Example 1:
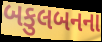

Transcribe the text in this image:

બકુલબનના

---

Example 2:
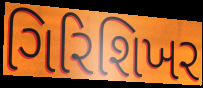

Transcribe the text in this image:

ગિરિશિખર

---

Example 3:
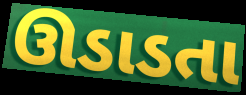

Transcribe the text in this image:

ઊડાડતા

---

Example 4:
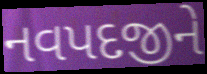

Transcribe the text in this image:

નવપદજીને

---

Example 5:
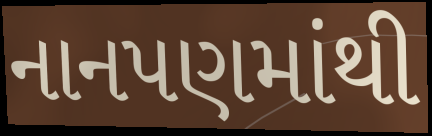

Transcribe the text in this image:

નાનપણમાંથી